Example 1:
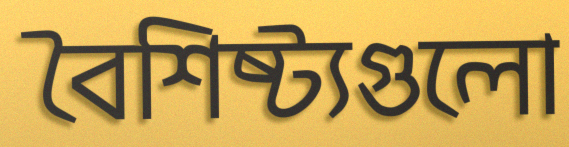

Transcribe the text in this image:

বৈশিষ্ট্যগুলো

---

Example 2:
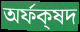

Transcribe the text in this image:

অর্ফক্‌ষদ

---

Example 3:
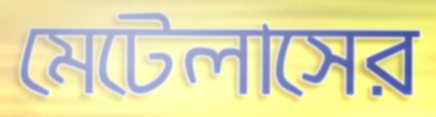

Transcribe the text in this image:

মেটেলাসের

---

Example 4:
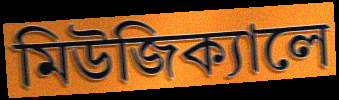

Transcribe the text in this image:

মিউজিক্যালে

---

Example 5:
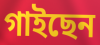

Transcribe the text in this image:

গাইছেন